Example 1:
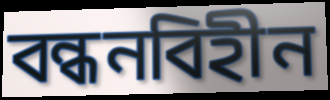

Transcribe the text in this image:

বন্ধনবিহীন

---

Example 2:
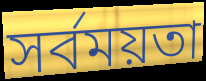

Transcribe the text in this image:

সর্বময়তা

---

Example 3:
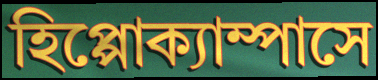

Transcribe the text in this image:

হিপ্পোক্যাম্পাসে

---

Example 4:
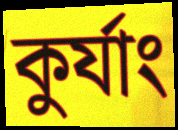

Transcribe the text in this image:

কুর্যাং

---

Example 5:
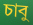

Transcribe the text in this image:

চাবু